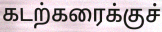
கடற்கரைக்குச்